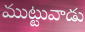
ముట్టువాడు